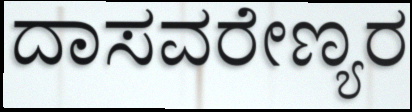
ದಾಸವರೇಣ್ಯರ